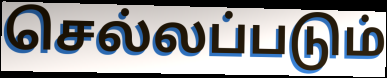
செல்லப்படும்